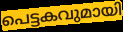
പെട്ടകവുമായി